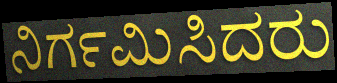
ನಿರ್ಗಮಿಸಿದರು